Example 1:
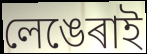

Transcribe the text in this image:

লেঙেৰাই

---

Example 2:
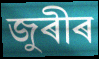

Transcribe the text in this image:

জুৰীৰ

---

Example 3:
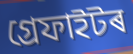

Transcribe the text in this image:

গ্ৰেফাইটৰ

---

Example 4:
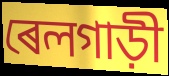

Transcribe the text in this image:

ৰেলগাড়ী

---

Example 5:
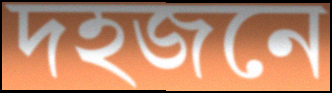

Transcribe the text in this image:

দহজনে